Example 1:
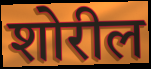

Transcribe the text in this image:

शोरील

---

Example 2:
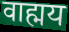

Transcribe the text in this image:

वाह्मय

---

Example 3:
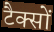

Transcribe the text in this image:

टैक्सों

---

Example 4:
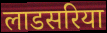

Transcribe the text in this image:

लाडसरिया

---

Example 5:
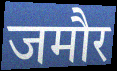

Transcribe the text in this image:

जमौर